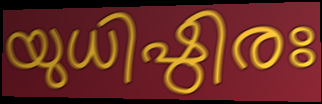
യുധിഷ്ഠിരഃ